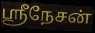
ஸ்ரீநேசன்